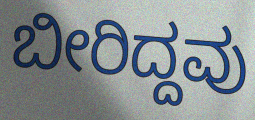
ಬೀರಿದ್ದವು